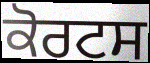
ਕੋਰਟਸ